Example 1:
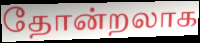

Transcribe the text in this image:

தோன்றலாக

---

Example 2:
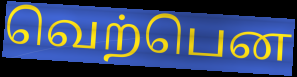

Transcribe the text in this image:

வெற்பென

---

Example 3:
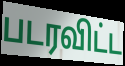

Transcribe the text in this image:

படரவிட்ட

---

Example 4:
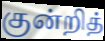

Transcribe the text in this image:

குன்றித்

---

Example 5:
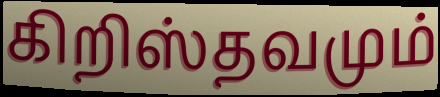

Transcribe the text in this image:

கிறிஸ்தவமும்